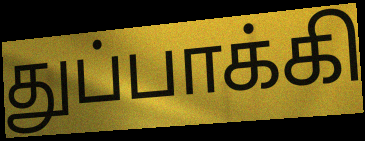
துப்பாக்கி